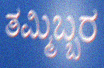
ತಮ್ಮಿಬ್ಬರ